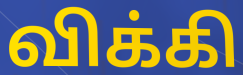
விக்கி